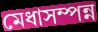
মেধাসম্পন্ন